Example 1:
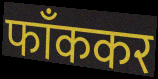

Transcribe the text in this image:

फाँककर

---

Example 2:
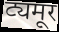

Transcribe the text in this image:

ट्यमूर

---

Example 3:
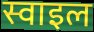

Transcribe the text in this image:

स्वाइल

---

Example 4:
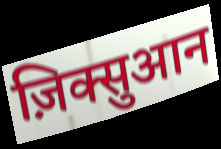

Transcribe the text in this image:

ज़िक्सुआन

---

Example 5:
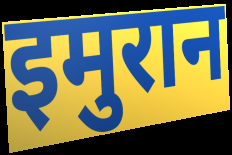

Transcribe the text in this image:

इमुरान